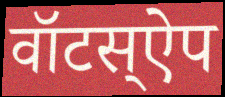
वॉटस्ऐप